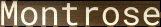
Montrose